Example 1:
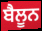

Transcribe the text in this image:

ਬੈਲੂਨ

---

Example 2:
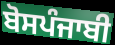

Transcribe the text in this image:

ਬੋਸਪੰਜਾਬੀ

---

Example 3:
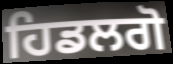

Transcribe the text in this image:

ਹਿਡਲਗੋ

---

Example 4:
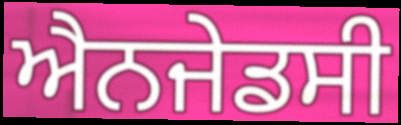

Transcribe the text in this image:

ਐਨਜੇਡਸੀ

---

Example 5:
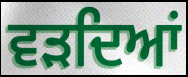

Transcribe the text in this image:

ਵੜਦਿਆਂ